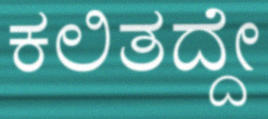
ಕಲಿತದ್ದೇ